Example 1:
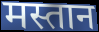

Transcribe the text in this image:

मस्तान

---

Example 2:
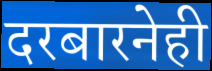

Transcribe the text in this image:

दरबारनेही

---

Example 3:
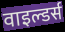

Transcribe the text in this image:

वाइल्डर्स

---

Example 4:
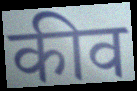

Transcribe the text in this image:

कीव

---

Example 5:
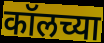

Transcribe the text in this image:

कॉलच्या